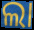
ଲା